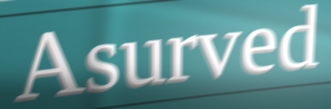
Asurved